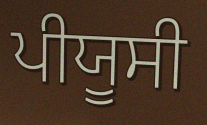
ਪੀਯੂਸੀ